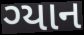
ગ્યાન